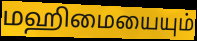
மஹிமையையும்